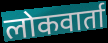
लोकवार्ता